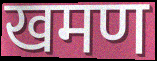
खमण